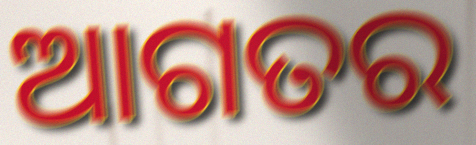
ଆଗତର